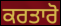
ਕਰਤਾਰੋ